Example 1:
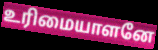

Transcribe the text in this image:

உரிமையாளனே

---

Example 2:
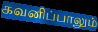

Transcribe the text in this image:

கவனிப்பாலும்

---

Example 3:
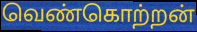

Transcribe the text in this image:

வெண்கொற்றன்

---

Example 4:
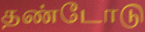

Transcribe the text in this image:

தண்டோடு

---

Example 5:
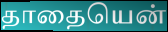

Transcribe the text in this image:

தாதையென்